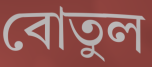
বোতুল